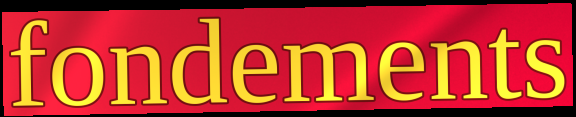
fondements